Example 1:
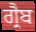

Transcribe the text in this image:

ਗ੍ਰੈਬ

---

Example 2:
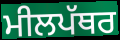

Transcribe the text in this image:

ਮੀਲਪੱਥਰ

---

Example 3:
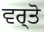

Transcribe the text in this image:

ਵਰ੍ਤੋ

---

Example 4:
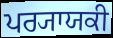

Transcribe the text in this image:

ਪਰ੍ਯਾਯਕੀ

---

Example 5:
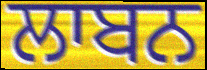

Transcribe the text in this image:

ਲਾਬਨ